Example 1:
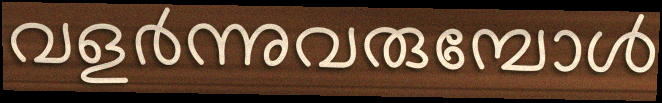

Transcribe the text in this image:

വളർന്നുവരുമ്പോൾ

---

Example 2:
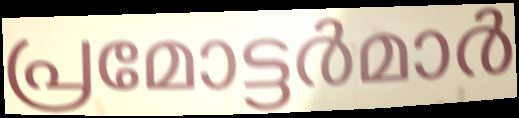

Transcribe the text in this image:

പ്രമോട്ടർമാർ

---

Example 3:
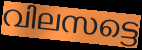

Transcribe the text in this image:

വിലസട്ടെ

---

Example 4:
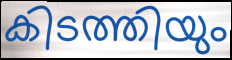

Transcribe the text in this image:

കിടത്തിയും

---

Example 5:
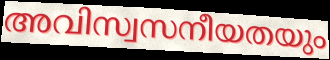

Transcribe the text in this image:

അവിസ്വസനീയതയും